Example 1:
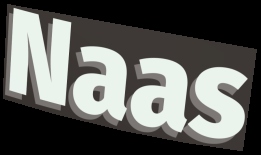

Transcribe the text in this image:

Naas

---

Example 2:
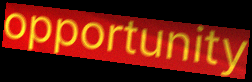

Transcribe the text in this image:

opportunity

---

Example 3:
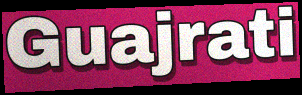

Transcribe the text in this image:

Guajrati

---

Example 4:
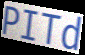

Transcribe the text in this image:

PITd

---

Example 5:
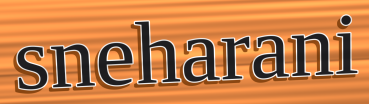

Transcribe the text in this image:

sneharani